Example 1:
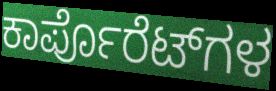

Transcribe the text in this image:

ಕಾರ್ಪೊರೆಟ್‌ಗಳ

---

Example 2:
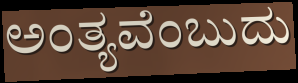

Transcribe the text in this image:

ಅಂತ್ಯವೆಂಬುದು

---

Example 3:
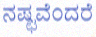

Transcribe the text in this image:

ನಷ್ಟವೆಂದರೆ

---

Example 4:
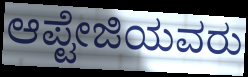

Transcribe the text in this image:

ಆಪ್ಟೇಜಿಯವರು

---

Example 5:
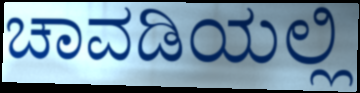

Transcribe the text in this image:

ಚಾವಡಿಯಲ್ಲಿ